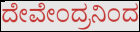
ದೇವೇಂದ್ರನಿಂದ